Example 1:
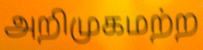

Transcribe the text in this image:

அறிமுகமற்ற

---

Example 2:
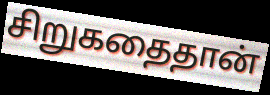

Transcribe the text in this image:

சிறுகதைதான்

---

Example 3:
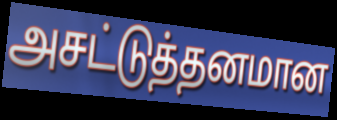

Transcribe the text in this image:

அசட்டுத்தனமான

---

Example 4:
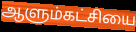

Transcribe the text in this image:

ஆளும்கட்சியை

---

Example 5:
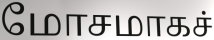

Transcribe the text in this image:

மோசமாகச்